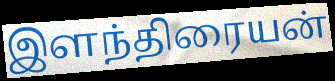
இளந்திரையன்